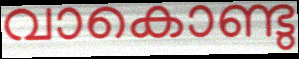
വാകൊണ്ടു